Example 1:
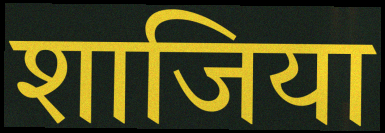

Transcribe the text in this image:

शाजिया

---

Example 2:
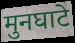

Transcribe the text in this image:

मुनघाटे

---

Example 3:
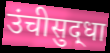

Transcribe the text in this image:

उंचीसुद्धा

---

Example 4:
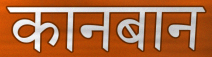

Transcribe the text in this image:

कानबान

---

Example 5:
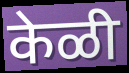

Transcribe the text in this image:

केळी